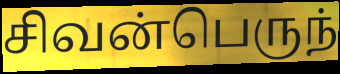
சிவன்பெருந்